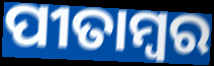
ପୀତାମ୍ୱର